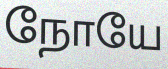
நோயே